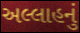
અલ્લાહનું